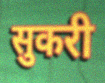
सुकरी